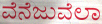
ವೆನೆಜುವೆಲಾ